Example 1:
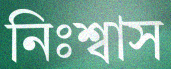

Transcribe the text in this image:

নিঃশ্বাস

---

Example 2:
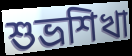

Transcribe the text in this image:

শুভ্রশিখা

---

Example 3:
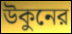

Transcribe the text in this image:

উকুনের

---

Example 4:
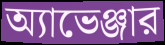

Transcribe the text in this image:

অ্যাভেঞ্জার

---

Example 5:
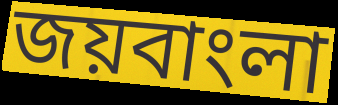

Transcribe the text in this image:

জয়বাংলা